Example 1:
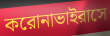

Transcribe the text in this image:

করোনাভাইরাসে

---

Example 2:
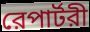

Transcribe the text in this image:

রেপার্টরী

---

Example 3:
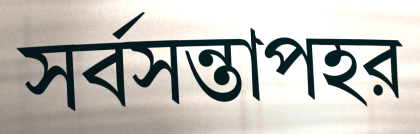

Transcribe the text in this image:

সর্বসন্তাপহর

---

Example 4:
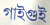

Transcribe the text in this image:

গাইগুই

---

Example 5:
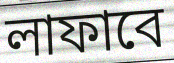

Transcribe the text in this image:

লাফাবে